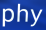
phy